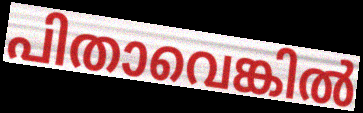
പിതാവെങ്കിൽ